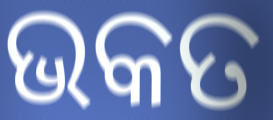
ଭକତ